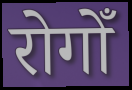
रोगोँ